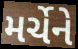
મર્ચેને